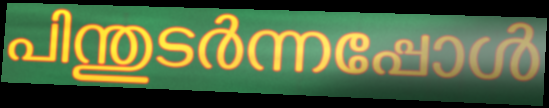
പിന്തുടർന്നപ്പോൾ